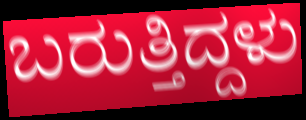
ಬರುತ್ತಿದ್ದಳು